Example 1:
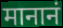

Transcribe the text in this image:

मानानं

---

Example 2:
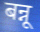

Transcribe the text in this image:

बन्नू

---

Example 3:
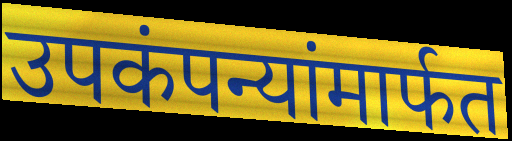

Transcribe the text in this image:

उपकंपन्यांमार्फत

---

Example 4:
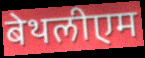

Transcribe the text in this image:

बेथलीएम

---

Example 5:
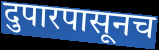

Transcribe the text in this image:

दुपारपासूनच